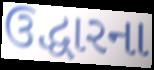
ઉદ્ધારના